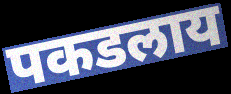
पकडलाय